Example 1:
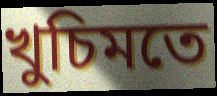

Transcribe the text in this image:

খুচিমতে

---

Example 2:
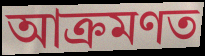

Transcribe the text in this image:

আক্ৰমণত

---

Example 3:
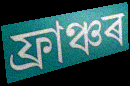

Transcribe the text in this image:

ফ্ৰাঞ্চৰ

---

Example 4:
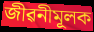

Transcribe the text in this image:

জীৱনীমূলক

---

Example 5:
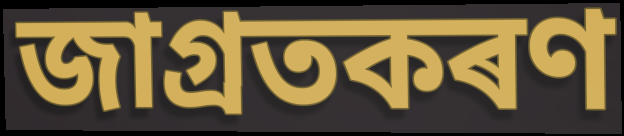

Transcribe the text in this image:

জাগ্ৰতকৰণ